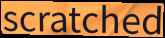
scratched